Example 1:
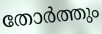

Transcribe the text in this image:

തോർത്തും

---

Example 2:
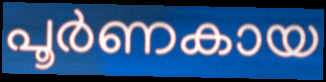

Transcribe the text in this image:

പൂർണകായ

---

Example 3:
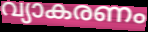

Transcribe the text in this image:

വ്യാകരണം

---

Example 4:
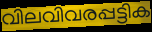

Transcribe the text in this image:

വിലവിവരപ്പട്ടിക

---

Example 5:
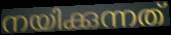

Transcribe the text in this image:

നയിക്കുന്നത്